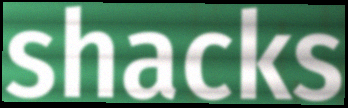
shacks